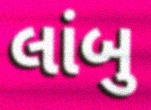
લાંબુ